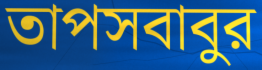
তাপসবাবুর